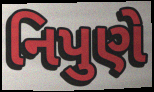
નિપુણે